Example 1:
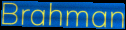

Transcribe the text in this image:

Brahman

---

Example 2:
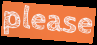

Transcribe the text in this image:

please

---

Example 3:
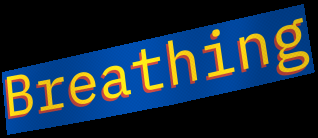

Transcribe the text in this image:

Breathing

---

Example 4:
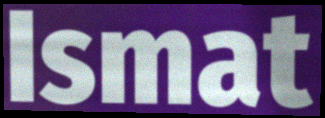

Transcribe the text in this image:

Ismat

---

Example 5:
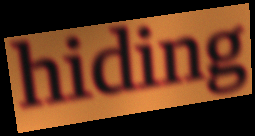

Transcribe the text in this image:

hiding